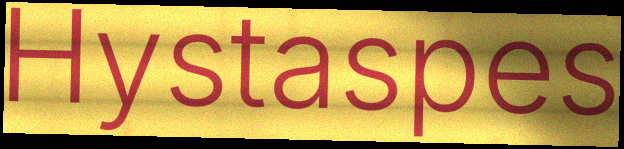
Hystaspes